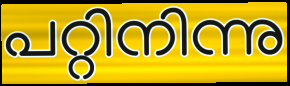
പറ്റിനിന്നു